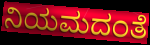
ನಿಯಮದಂತೆ